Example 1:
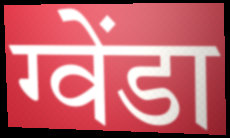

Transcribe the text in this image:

ग्वेंडा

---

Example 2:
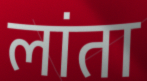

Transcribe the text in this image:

लांता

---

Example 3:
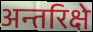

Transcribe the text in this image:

अन्तरिक्षे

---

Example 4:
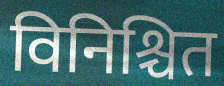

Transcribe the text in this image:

विनिश्चित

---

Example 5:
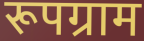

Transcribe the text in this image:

रूपग्राम